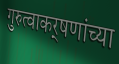
गुरुत्वाकर्षणांच्या